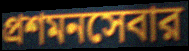
প্রশমনসেবার